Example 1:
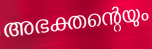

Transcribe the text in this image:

അഭക്തന്റെയും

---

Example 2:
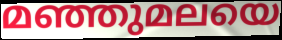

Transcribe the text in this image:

മഞ്ഞുമലയെ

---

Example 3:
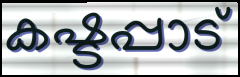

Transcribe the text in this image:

കഷ്ടപ്പാട്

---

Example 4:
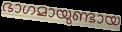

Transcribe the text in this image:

ഭാഗമായുണ്ടായ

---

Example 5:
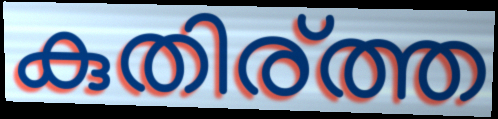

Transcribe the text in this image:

കുതിര്ത്ത